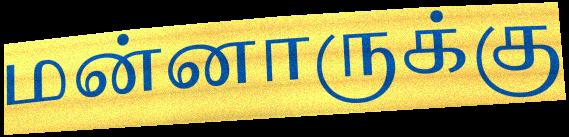
மன்னாருக்கு